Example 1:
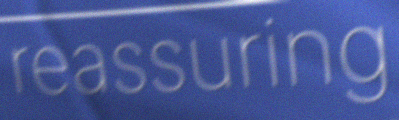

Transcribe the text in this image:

reassuring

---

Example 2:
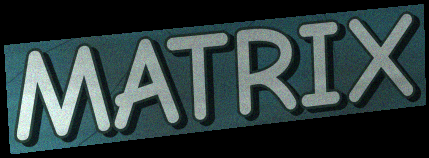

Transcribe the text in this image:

MATRIX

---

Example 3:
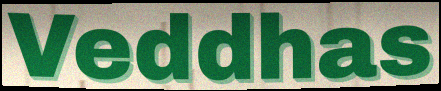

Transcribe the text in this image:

Veddhas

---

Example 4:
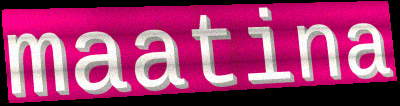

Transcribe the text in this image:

maatina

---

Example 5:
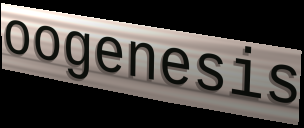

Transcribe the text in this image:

oogenesis